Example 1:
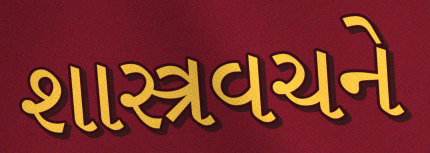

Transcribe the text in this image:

શાસ્ત્રવચને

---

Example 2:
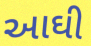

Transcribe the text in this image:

આઘી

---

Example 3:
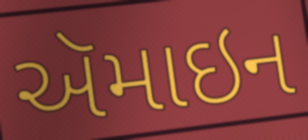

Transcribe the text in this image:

ઍમાઇન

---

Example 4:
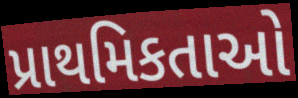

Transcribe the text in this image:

પ્રાથમિકતાઓ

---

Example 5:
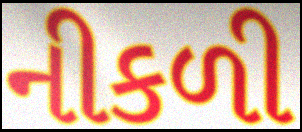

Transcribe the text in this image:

નીકળી